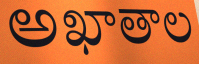
అఖాతాల